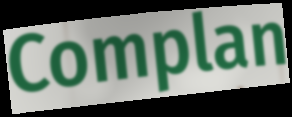
Complan